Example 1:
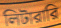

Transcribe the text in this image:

লিটারারি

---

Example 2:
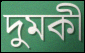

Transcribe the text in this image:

দুমকী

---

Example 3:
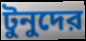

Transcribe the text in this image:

টুনুদের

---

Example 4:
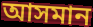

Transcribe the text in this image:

আসমান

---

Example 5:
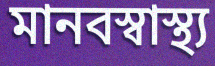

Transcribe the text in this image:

মানবস্বাস্থ্য